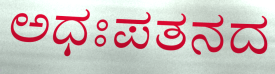
ಅಧಃಪತನದ